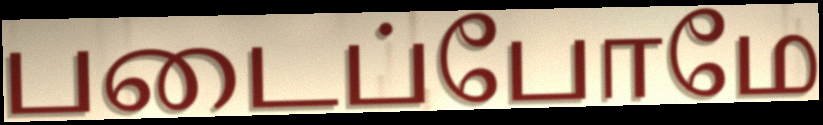
படைப்போமே